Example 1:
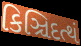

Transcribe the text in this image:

કિઞ્ચિદત્થં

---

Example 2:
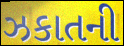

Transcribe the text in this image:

ઝકાતની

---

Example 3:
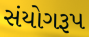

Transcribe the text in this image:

સંયોગરૂપ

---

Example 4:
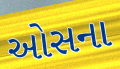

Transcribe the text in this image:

ઓસના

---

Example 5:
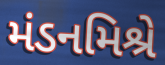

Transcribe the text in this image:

મંડનમિશ્રે